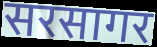
सरसागर